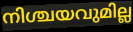
നിശ്ചയവുമില്ല